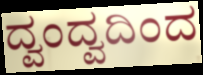
ದ್ವಂದ್ವದಿಂದ